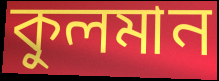
কুলমান